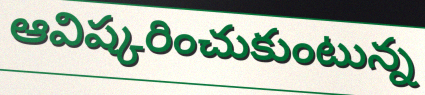
ఆవిష్కరించుకుంటున్న